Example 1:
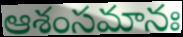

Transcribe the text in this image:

ఆశంసమానః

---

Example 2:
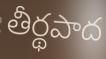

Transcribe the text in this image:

తీర్థపాద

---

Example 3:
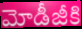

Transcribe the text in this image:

మోడీజీకి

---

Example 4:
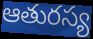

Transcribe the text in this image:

ఆతురస్య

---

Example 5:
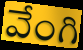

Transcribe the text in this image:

వేంగి